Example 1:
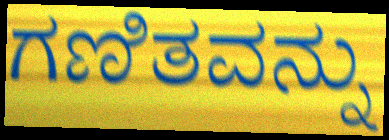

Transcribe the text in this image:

ಗಣಿತವನ್ನು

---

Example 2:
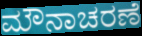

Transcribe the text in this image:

ಮೌನಾಚರಣೆ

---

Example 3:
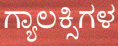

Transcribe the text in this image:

ಗ್ಯಾಲಕ್ಸಿಗಳ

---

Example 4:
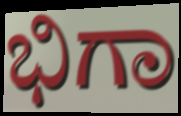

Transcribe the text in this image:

ಭಿಗಾ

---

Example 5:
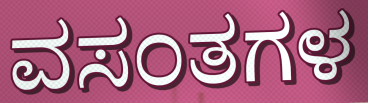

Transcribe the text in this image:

ವಸಂತಗಳ